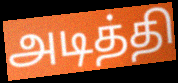
அடித்தி